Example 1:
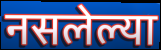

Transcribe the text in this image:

नसलेल्या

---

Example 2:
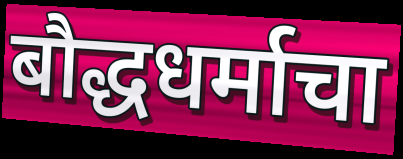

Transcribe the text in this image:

बौद्धधर्माचा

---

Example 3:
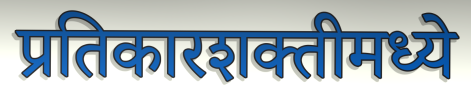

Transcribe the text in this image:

प्रतिकारशक्तीमध्ये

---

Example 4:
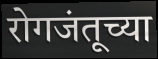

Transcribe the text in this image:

रोगजंतूच्या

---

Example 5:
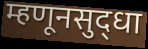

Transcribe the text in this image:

म्हणूनसुद्धा